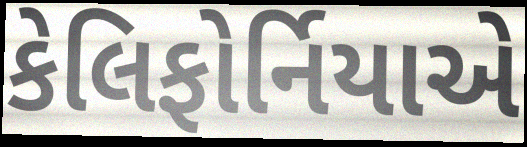
કેલિફોર્નિયાએ